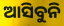
ଆସିବୁନି